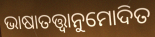
ଭାଷାତତ୍ତ୍ୱାନୁମୋଦିତ